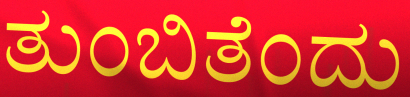
ತುಂಬಿತೆಂದು